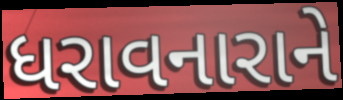
ધરાવનારાને